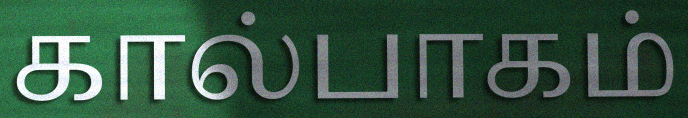
கால்பாகம்